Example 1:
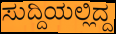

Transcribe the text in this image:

ಸುದ್ದಿಯಲ್ಲಿದ್ದ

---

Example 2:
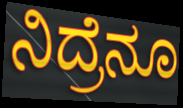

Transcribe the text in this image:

ನಿದ್ರೆನೂ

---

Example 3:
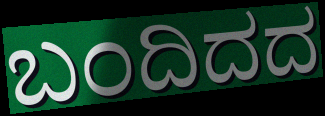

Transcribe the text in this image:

ಬಂದಿದದ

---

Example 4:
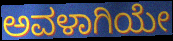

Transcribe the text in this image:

ಅವಳಾಗಿಯೇ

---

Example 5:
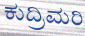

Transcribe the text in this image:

ಕುದ್ರಿಮರಿ